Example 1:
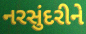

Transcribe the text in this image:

નરસુંદરીને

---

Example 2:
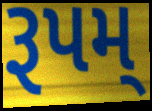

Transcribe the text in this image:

રૂપમ્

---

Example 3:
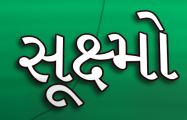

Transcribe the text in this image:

સૂક્ષ્મો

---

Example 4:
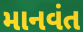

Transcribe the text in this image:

માનવંત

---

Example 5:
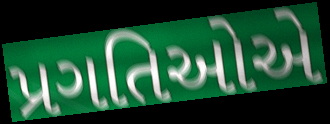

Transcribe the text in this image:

પ્રગતિઓએ